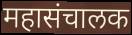
महासंचालक